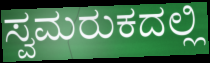
ಸ್ವಮರುಕದಲ್ಲಿ